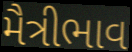
મૈત્રીભાવ